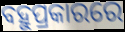
ବହୁପ୍ରକାରରେ